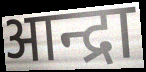
आन्द्रा